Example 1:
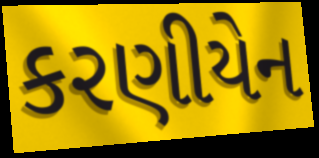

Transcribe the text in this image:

કરણીયેન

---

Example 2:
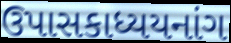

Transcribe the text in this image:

ઉપાસકાધ્યયનાંગ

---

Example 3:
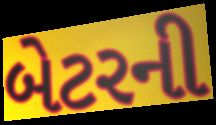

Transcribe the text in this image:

બેટરની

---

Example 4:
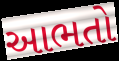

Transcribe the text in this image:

આભતો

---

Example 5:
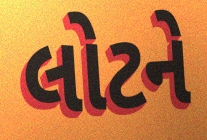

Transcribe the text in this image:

લોટને